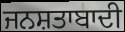
ਜਨਸ਼ਤਾਬਾਦੀ